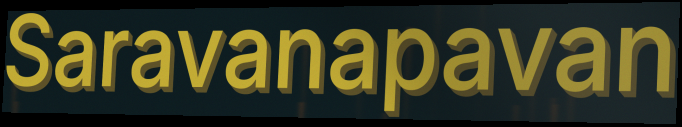
Saravanapavan